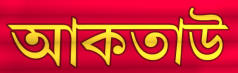
আকতাউ